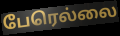
பேரெல்லை